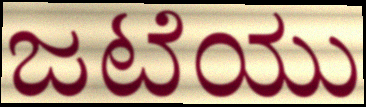
ಜಟೆಯು